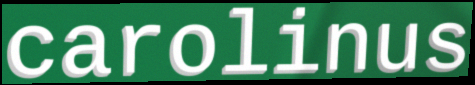
carolinus